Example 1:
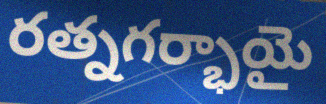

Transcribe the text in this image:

రత్నగర్భాయై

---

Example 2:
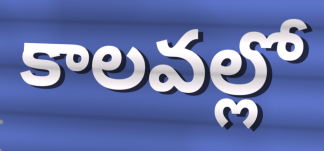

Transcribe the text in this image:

కాలవల్లో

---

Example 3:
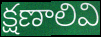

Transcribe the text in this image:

క్షణాలివి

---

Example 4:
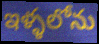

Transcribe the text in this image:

ఇళ్ళలోను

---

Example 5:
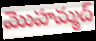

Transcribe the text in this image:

మొహమ్మద్